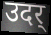
उदर्